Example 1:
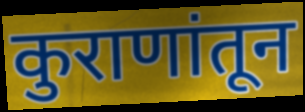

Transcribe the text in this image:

कुराणांतून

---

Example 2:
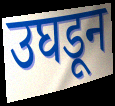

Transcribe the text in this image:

उघडून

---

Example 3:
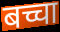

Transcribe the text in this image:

बच्चा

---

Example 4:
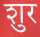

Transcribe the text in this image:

शुर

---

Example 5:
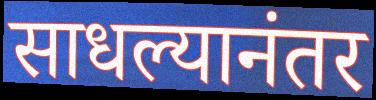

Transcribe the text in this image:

साधल्यानंतर